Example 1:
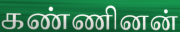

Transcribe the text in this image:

கண்ணினன்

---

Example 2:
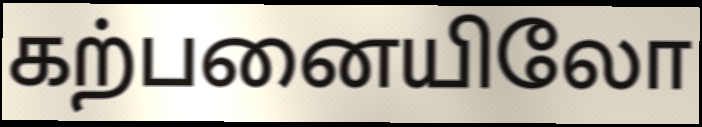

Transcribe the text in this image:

கற்பனையிலோ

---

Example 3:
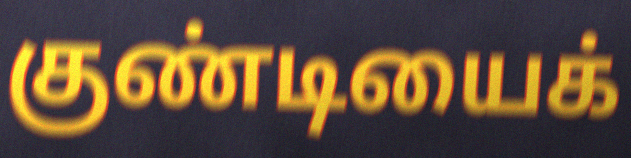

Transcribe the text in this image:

குண்டியைக்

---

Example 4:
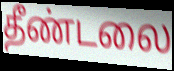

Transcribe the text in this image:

தீண்டலை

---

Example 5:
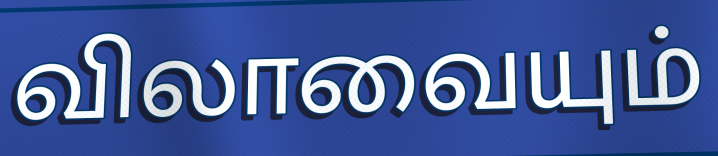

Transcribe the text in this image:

விலாவையும்